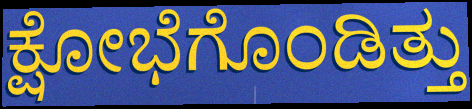
ಕ್ಷೋಭೆಗೊಂಡಿತ್ತು